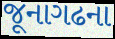
જૂનાગઢના